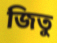
জিতু